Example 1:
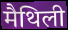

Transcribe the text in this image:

मैथिली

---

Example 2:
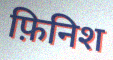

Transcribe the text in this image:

फ़िनिश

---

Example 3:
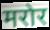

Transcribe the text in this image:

मरोर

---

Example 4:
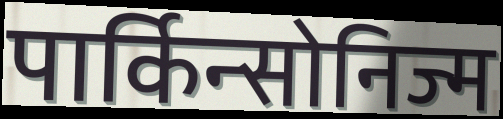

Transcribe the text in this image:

पार्किन्सोनिज्म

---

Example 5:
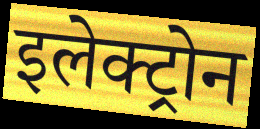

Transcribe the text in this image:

इलेक्ट्रोन